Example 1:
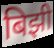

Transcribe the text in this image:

बिझी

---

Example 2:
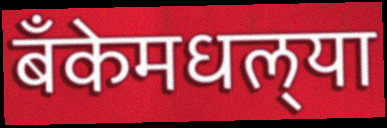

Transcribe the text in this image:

बँकेमधल्या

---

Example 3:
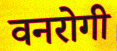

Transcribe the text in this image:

वनरोगी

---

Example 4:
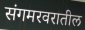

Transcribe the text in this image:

संगमरवरातील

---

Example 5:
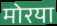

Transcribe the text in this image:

मोरया